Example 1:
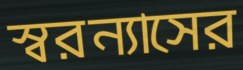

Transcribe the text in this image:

স্বরন্যাসের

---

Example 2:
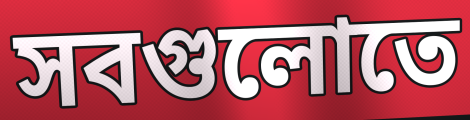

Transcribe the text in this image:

সবগুলোতে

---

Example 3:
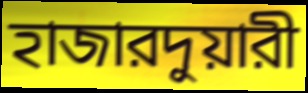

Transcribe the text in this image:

হাজারদুয়ারী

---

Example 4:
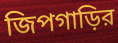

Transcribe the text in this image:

জিপগাড়ির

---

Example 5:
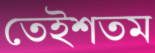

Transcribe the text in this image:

তেইশতম